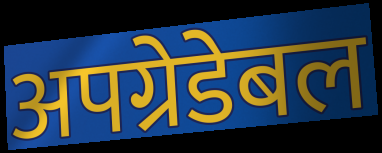
अपग्रेडेबल